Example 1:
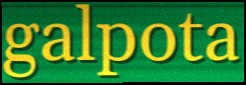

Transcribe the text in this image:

galpota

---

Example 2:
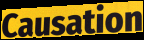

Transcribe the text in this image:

Causation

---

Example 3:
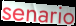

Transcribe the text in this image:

senario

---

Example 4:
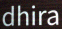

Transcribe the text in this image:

dhira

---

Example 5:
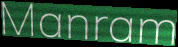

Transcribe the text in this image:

Manram